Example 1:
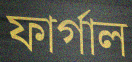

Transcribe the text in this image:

ফার্গাল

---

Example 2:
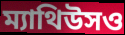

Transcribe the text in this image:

ম্যাথিউসও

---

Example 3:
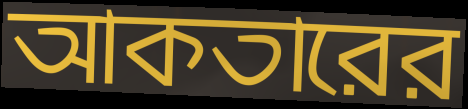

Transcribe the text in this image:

আকতারের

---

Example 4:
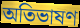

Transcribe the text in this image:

অতিভাষণ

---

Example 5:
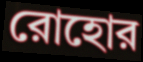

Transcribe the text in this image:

রোহোর